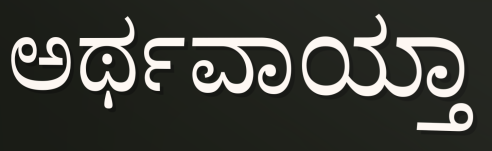
ಅರ್ಥವಾಯ್ತಾ